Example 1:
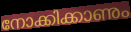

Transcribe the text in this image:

നോക്കിക്കാണും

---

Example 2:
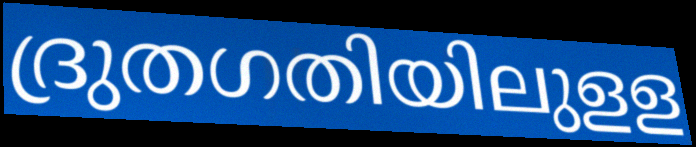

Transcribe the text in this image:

ദ്രുതഗതിയിലുളള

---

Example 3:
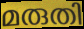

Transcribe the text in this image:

മരുതി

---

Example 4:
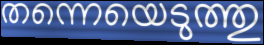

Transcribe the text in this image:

തന്നെയെടുത്തു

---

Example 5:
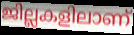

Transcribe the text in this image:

ജില്ലകളിലാണ്